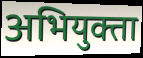
अभियुक्ता